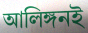
আলিঙ্গনই